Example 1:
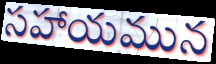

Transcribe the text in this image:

సహాయమున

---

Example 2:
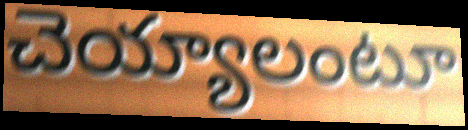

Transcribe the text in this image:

చెయ్యాలంటూ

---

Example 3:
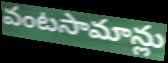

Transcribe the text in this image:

వంటసామాన్లు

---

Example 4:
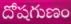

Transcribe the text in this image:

దోషగుణం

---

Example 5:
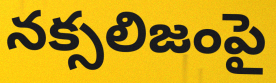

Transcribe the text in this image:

నక్సలిజంపై